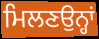
ਮਿਲਣਉਨ੍ਹਾਂ